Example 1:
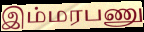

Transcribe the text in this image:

இம்மரபணு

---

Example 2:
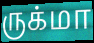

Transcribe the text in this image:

ருக்மா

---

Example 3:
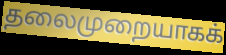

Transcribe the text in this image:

தலைமுறையாகக்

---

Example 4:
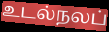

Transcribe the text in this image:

உடல்நலப்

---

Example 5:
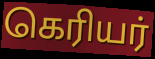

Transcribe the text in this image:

கெரியர்